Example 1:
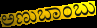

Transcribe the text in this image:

ಅಣುಬಾಂಬು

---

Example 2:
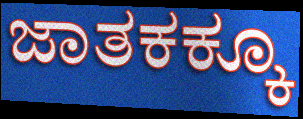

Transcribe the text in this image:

ಜಾತಕಕ್ಕೂ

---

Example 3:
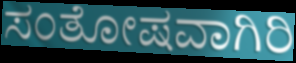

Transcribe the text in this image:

ಸಂತೋಷವಾಗಿರಿ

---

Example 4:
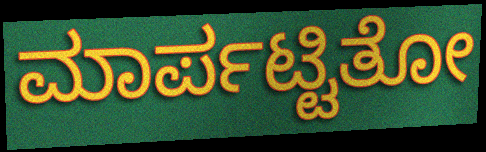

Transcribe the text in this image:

ಮಾರ್ಪಟ್ಟಿತೋ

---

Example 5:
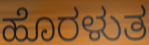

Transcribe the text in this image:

ಹೊರಳುತ